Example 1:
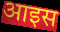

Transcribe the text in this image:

आइस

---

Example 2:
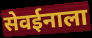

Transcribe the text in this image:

सेवईनाला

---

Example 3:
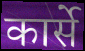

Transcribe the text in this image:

कार्से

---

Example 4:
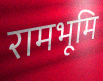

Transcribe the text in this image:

रामभूमि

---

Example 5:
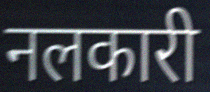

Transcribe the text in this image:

नलकारी